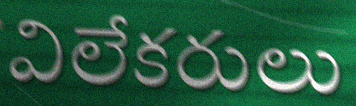
విలేకరులు